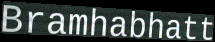
Bramhabhatt